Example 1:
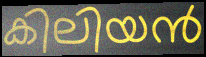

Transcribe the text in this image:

കിലിയൻ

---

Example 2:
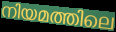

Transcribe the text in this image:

നിയമത്തിലെ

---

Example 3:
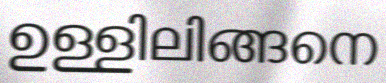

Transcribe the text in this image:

ഉള്ളിലിങ്ങനെ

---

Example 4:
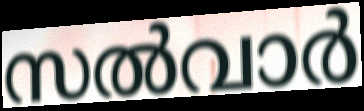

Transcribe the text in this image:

സൽവാർ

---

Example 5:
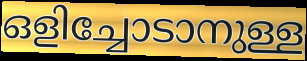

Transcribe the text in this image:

ഒളിച്ചോടാനുള്ള